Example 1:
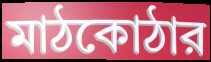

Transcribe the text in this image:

মাঠকোঠার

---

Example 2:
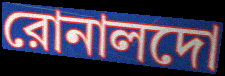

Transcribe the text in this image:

রোনালদো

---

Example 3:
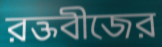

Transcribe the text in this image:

রক্তবীজের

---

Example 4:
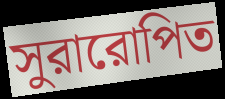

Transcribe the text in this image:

সুরারোপিত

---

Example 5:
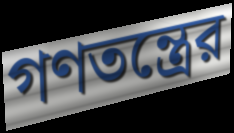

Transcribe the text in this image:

গণতন্ত্রের